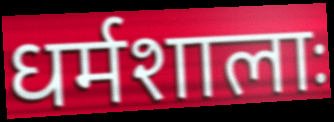
धर्मशालाः